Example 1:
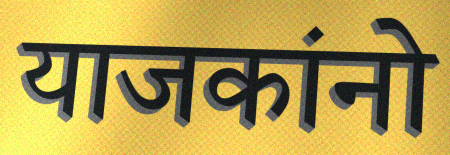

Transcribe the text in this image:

याजकांनो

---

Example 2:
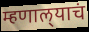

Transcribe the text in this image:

म्हणाल्याचं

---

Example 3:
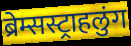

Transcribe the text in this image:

ब्रेम्सस्ट्राहलुंग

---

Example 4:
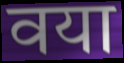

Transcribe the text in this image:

वया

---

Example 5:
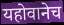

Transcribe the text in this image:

यहोवानेच